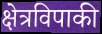
क्षेत्रविपाकी